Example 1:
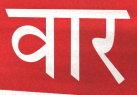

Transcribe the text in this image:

वार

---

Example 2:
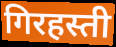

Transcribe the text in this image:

गिरहस्ती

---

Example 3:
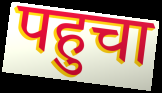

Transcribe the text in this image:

पहुचा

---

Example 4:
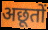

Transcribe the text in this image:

अछूतों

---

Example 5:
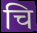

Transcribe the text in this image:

चि